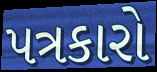
પત્રકારો